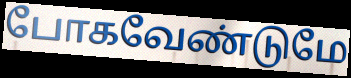
போகவேண்டுமே